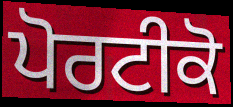
ਪੋਰਟੀਕੋ